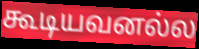
கூடியவனல்ல